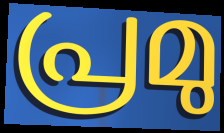
പ്രമു